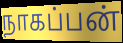
நாகப்பன்